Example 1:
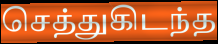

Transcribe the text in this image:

செத்துகிடந்த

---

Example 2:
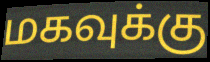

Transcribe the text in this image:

மகவுக்கு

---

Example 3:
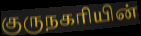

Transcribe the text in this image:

குருநகரியின்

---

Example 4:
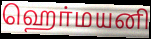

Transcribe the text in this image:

ஹெர்மயனி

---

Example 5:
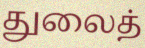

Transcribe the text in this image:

துலைத்